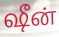
ஷீன்